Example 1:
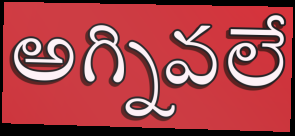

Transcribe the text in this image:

అగ్నివలే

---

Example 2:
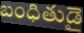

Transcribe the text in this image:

బంధితుడై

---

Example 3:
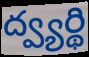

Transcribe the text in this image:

ద్వ్యర్థి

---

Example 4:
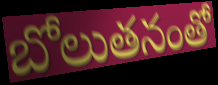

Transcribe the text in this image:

బోలుతనంతో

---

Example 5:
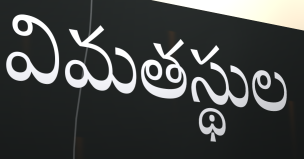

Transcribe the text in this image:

విమతస్థుల